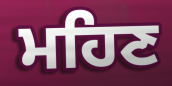
ਮਹਿਣ